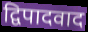
द्विपादवाद